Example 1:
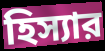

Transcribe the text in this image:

হিস্যার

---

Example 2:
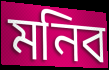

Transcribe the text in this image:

মনিব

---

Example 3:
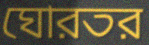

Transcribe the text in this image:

ঘোরতর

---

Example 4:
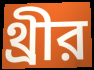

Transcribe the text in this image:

থ্রীর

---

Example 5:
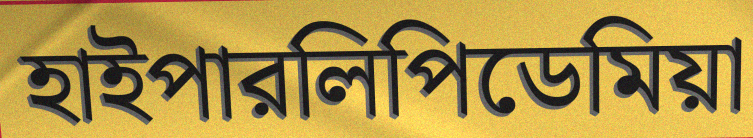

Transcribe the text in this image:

হাইপারলিপিডেমিয়া